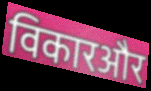
विकारऔर